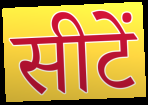
सीटें